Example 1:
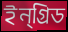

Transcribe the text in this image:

ইন্‌গ্রিড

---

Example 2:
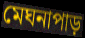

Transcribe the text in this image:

মেঘনাপাড়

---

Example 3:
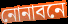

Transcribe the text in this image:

নোনাবনে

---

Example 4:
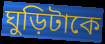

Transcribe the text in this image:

ঘুড়িটাকে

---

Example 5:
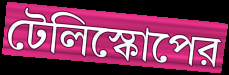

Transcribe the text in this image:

টেলিস্কোপের